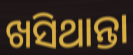
ଖସିଥାନ୍ତା